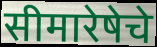
सीमारेषेचे